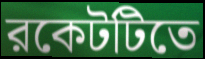
রকেটটিতে